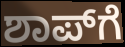
ಶಾಪ್‌ಗೆ